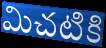
మిచటికి